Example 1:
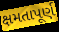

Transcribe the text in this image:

ક્ષમતાપૂર્ણ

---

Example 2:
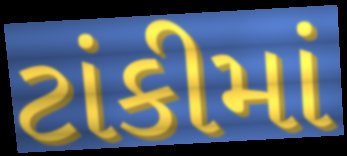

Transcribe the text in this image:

ટાંકીમાં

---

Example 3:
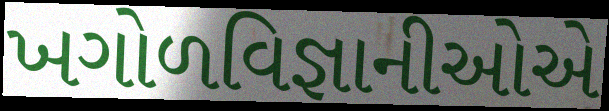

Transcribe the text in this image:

ખગોળવિજ્ઞાનીઓએ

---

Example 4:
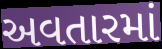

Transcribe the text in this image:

અવતારમાં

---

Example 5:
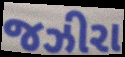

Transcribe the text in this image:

જઝીરા